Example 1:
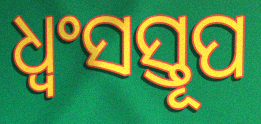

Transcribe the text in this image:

ଧ୍ୱଂସସ୍ତୂପ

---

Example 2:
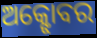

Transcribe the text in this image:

ଅକ୍ଝୋବର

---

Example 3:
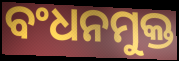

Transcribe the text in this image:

ବଂଧନମୁକ୍ତ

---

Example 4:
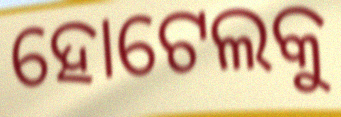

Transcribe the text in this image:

ହୋଟେଲକୁ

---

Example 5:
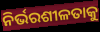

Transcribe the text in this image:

ନିର୍ଭରଶୀଳତାକୁ